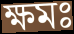
ক্ষমঃ